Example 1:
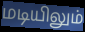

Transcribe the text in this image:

மடியிலும்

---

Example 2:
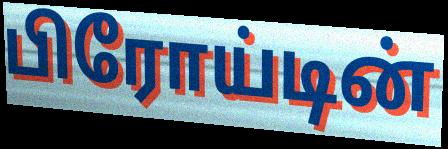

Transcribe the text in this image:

பிரோய்டின்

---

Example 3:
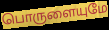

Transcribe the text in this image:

பொருளையுமே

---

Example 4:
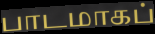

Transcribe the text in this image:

பாடமாகப்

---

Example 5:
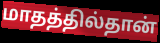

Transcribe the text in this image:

மாதத்தில்தான்